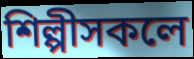
শিল্পীসকলে